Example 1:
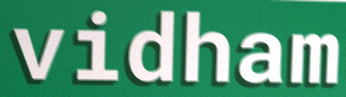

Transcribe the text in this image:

vidham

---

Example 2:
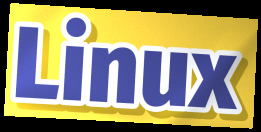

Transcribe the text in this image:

Linux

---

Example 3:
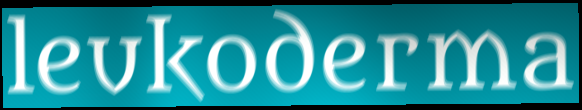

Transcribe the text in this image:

leukoderma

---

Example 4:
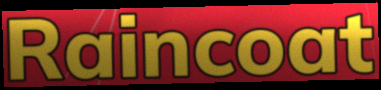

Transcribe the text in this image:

Raincoat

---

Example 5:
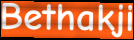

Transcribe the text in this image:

Bethakji